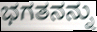
ಭಗತನನ್ನು